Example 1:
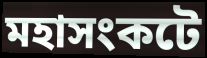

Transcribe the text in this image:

মহাসংকটে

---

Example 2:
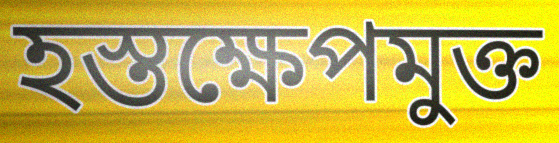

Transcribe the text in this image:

হস্তক্ষেপমুক্ত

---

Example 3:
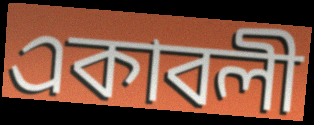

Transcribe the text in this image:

একাবলী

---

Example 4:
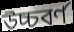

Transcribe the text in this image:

উচ্চবর্ণ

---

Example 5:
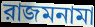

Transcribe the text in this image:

রাজমনামা